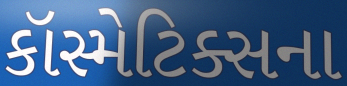
કૉસ્મેટિક્સના